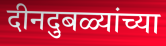
दीनदुबळ्यांच्या